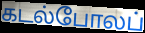
கடல்போலப்